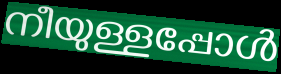
നീയുള്ളപ്പോൾ